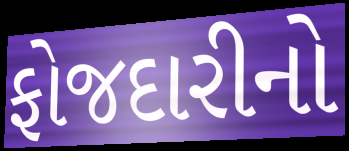
ફોજદારીનો